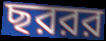
ছররর